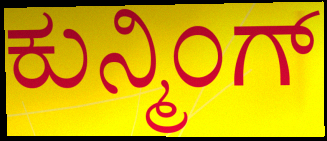
ಕುನ್ಮಿಂಗ್